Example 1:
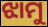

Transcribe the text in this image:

ଝାମୁ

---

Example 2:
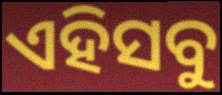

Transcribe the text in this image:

ଏହିସବୁ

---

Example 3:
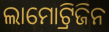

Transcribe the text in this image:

ଲାମୋଟ୍ରିଜିନ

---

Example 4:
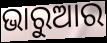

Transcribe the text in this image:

ଭାରୁଆର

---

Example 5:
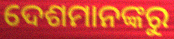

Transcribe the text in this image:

ଦେଶମାନଙ୍କରୁ